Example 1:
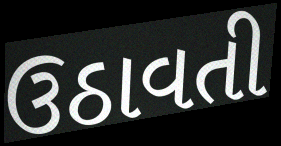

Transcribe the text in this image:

ઉઠાવતી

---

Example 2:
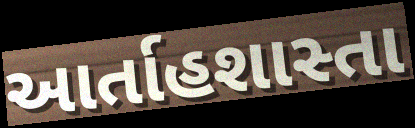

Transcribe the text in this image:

આર્તાહશાસ્તા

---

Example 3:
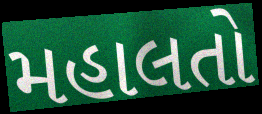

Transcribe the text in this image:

મહાલતો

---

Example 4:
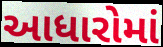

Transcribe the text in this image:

આધારોમાં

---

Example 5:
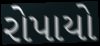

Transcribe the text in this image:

રોપાયો